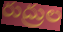
రుద్రుల